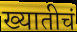
ख्यातीचं